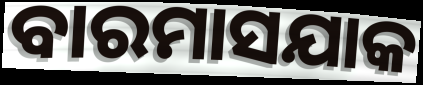
ବାରମାସଯାକ